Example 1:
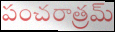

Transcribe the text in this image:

పంచరాత్రమ్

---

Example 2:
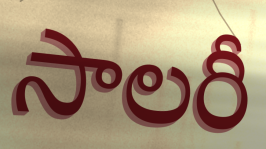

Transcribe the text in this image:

సాలరీ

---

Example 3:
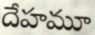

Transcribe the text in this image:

దేహమూ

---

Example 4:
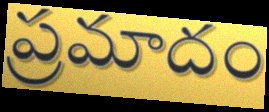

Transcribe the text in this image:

ప్రమాదం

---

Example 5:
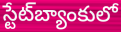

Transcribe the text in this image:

స్టేట్‌బ్యాంకులో